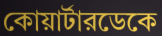
কোয়ার্টারডেকে